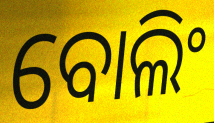
ବୋଲିଂ